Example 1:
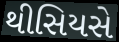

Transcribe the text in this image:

થીસિયસે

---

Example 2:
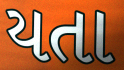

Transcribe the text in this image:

યતા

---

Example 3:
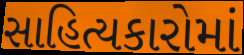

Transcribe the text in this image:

સાહિત્યકારોમાં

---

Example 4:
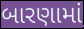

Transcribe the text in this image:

બારણામાં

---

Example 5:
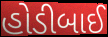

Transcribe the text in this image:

હોડીબાઈ